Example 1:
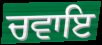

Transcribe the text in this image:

ਚਵਾਇ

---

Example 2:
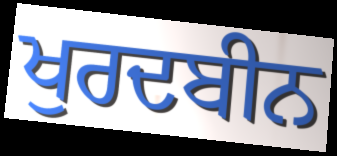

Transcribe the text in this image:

ਖੁਰਦਬੀਨ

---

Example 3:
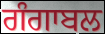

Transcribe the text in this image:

ਗੰਗਾਬਲ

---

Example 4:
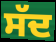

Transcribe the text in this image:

ਸੱਦ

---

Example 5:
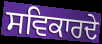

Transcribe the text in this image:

ਸਵਿਕਾਰਦੇ